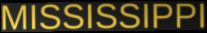
MISSISSIPPI